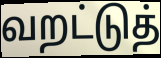
வறட்டுத்